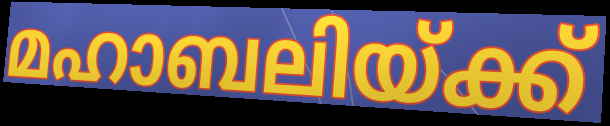
മഹാബലിയ്ക്ക്